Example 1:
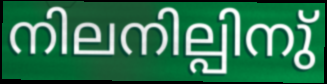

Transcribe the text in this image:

നിലനില്പിനു്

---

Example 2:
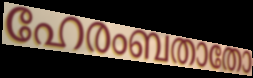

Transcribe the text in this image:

ഹേരംബതാതോ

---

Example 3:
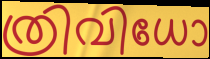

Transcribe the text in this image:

ത്രിവിധോ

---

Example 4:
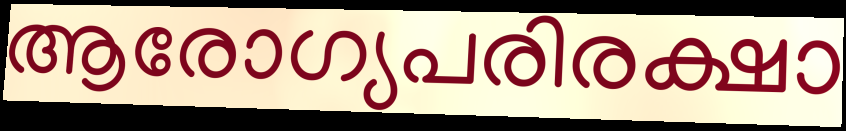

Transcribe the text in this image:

ആരോഗ്യപരിരക്ഷാ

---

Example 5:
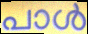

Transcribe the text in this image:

പാൾ